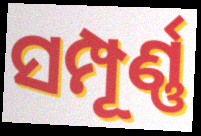
ସମ୍ପୂର୍ଣ୍ଣ